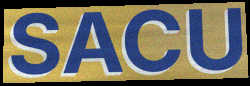
SACU